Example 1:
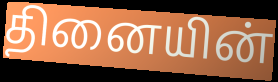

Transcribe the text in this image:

தினையின்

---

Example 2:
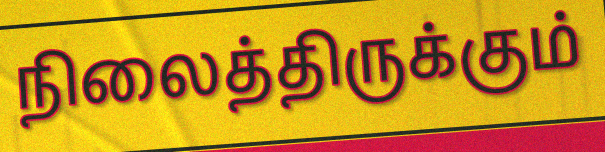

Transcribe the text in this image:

நிலைத்திருக்கும்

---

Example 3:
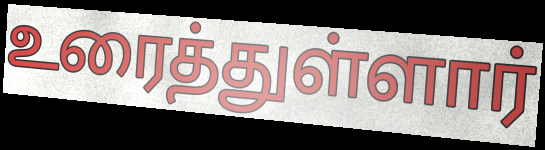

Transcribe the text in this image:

உரைத்துள்ளார்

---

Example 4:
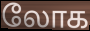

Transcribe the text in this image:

லோக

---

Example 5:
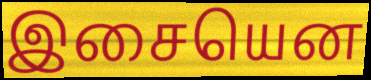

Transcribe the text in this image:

இசையென